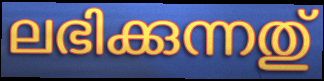
ലഭിക്കുന്നതു്